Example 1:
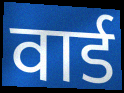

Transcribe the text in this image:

वार्ड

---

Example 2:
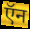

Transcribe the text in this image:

ऍन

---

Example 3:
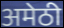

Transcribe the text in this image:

अमेठी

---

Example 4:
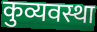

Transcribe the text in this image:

कुव्यवस्था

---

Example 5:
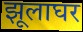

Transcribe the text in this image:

झूलाघर